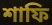
শাফি